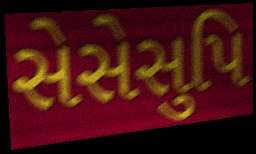
સેસેસુપિ